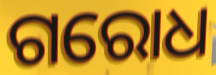
ଗରୋଧ